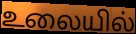
உலையில்